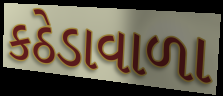
કઠેડાવાળા